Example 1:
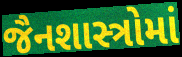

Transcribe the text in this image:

જૈનશાસ્ત્રોમાં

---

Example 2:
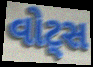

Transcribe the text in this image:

વોટ્સ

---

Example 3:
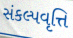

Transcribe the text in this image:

સંકલ્પવૃત્તિ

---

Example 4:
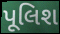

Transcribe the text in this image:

પૂલિશ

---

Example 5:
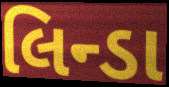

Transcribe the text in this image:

લિન્ડા